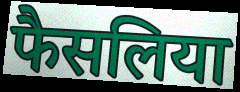
फैसलिया